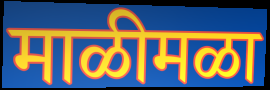
माळीमळा